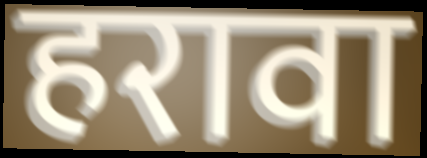
हरावा